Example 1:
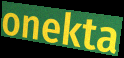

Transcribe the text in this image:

onekta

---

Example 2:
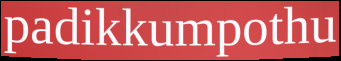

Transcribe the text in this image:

padikkumpothu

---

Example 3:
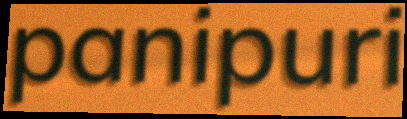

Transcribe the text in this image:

panipuri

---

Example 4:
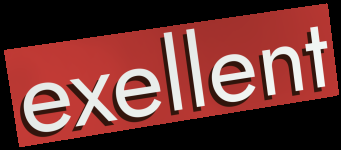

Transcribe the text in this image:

exellent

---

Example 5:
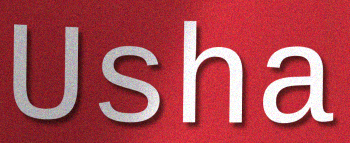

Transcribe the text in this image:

Usha